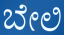
ಬೇಲಿ